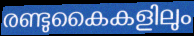
രണ്ടുകൈകളിലും